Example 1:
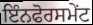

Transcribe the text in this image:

ਇੰਨਫੋਰਸਮੇਂਟ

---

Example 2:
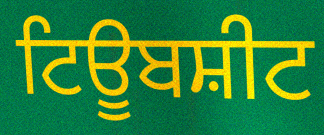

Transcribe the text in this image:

ਟਿਊਬਸ਼ੀਟ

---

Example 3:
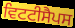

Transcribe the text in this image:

ਵਿਟਟੀਸੈਪਸ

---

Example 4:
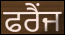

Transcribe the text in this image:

ਫਰੈਂਜ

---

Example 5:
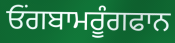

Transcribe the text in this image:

ਓਂਗਬਾਮਰੂੰਗਫਾਨ